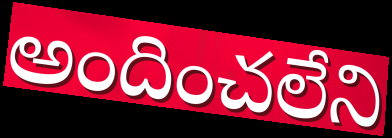
అందించలేని